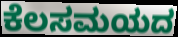
ಕೆಲಸಮಯದ